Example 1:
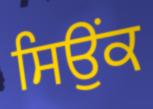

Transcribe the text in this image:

ਸਿਉਂਕ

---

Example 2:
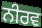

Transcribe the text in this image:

ਨੀਰਵ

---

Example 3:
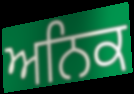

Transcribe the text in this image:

ਅਨਿਕ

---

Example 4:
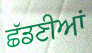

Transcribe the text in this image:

ਛੱਡਣੀਆਂ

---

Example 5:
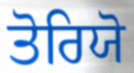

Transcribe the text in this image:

ਤੋਰਿਯੋ